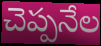
చెప్పనేల